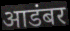
आडंबर